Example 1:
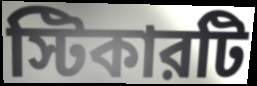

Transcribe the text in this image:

স্টিকারটি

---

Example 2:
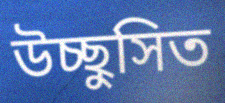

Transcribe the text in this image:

উচ্ছুসিত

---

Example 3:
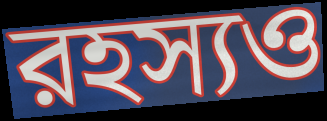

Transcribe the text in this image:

রহস্যও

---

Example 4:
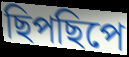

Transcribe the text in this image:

ছিপছিপে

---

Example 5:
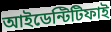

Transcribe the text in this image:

আইডেন্টিটিফাই